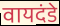
वायदंडे